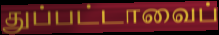
துப்பட்டாவைப்